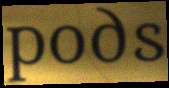
pods